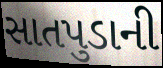
સાતપુડાની